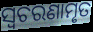
ସ୍ଵଚରଣାମୃତ